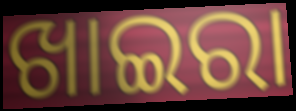
ଖାଇରା